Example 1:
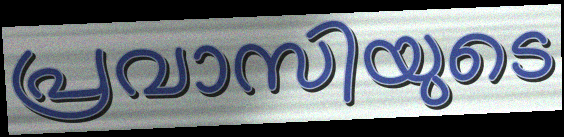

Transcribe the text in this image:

പ്രവാസിയുടെ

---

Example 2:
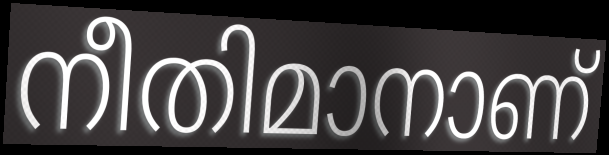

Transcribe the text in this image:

നീതിമാനാണ്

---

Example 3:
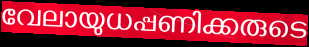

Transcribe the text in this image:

വേലായുധപ്പണിക്കരുടെ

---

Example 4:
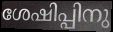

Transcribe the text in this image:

ശേഷിപ്പിനു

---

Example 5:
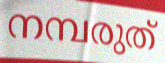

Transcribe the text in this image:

നമ്പരുത്